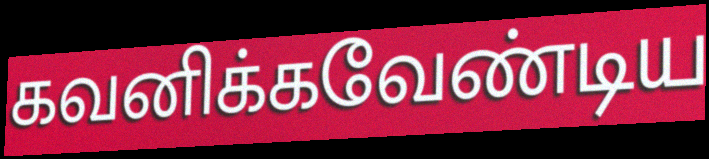
கவனிக்கவேண்டிய